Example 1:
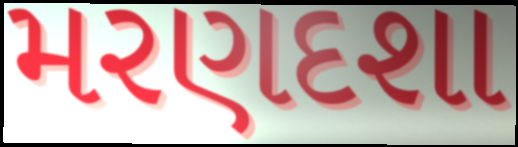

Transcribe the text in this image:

મરણદશા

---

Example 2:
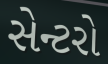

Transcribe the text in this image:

સેન્ટરો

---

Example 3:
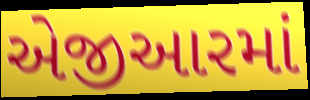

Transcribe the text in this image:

એજીઆરમાં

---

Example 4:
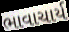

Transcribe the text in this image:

ભાવાચાર્ય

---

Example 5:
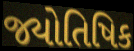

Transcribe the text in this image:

જ્યોતિષિક